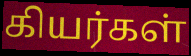
கியர்கள்